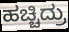
ಹಚ್ಚಿದ್ರು